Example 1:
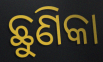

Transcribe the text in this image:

ଛୁଣିକା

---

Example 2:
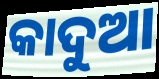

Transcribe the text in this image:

କାଦୁଆ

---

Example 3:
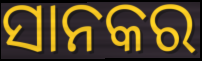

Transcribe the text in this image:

ସାନକର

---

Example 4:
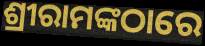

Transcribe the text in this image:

ଶ୍ରୀରାମଙ୍କଠାରେ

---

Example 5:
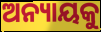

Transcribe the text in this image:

ଅନ୍ୟାୟକୁ